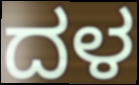
ದಳ